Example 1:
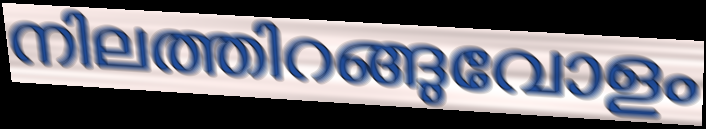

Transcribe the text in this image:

നിലത്തിറങ്ങുവോളം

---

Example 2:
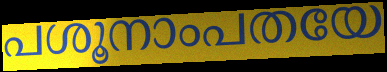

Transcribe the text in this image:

പശൂനാംപതയേ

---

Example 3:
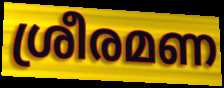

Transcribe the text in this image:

ശ്രീരമണ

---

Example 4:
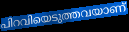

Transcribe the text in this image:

പിറവിയെടുത്തവയാണ്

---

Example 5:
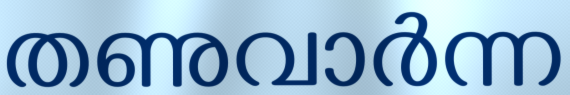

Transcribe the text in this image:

തണുവാർന്ന